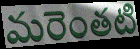
మరెంతటి